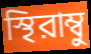
স্থিরাম্বু